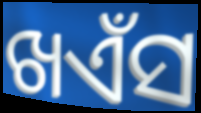
ଖଏଁସ